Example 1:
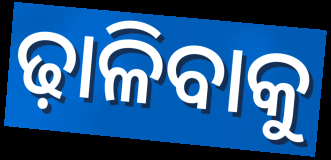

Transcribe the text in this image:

ଢ଼ାଳିବାକୁ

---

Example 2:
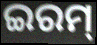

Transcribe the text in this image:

ଇରମ୍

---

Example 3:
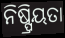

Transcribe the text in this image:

ନିଷ୍ପ୍ରିୟତା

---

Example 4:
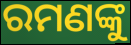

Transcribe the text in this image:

ରମଣଙ୍କୁ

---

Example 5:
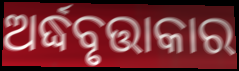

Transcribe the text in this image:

ଅର୍ଦ୍ଧବୃତ୍ତାକାର